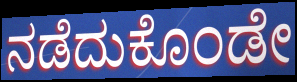
ನಡೆದುಕೊಂಡೇ